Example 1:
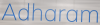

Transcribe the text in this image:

Adharam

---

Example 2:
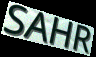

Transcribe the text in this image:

SAHR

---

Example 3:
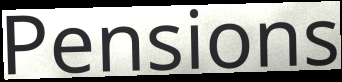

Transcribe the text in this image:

Pensions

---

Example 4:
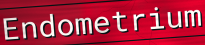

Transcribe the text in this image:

Endometrium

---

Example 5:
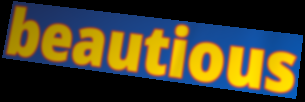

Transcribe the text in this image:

beautious